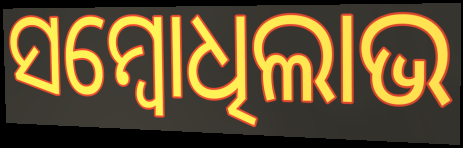
ସମ୍ବୋଧିଲାଭ